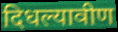
दिधल्यावीण